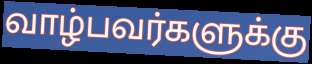
வாழ்பவர்களுக்கு